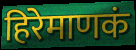
हिरेमाणकं